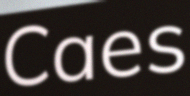
Caes